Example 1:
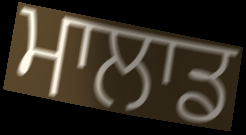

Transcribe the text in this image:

ਮਾਲਾਡ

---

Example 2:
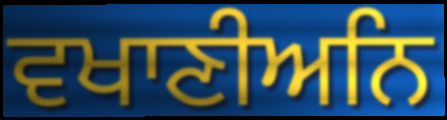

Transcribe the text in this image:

ਵਖਾਣੀਅਨਿ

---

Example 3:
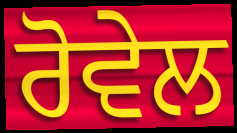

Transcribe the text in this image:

ਰੋਵੇਲ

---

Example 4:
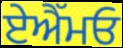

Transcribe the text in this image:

ਏਐੱਮਓ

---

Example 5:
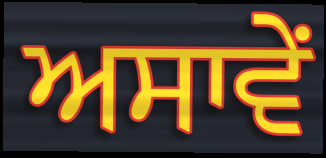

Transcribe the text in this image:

ਅਸਾਵੇਂ